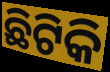
ଛିଟିକି